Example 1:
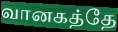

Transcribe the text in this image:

வானகத்தே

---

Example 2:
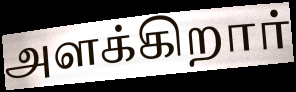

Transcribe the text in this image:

அளக்கிறார்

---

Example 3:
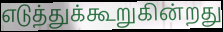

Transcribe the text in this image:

எடுத்துக்கூறுகின்றது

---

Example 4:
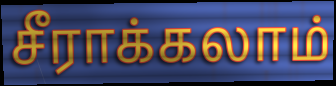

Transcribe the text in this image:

சீராக்கலாம்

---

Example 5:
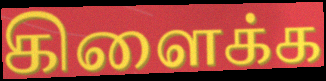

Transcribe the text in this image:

கிளைக்க